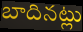
బాదినట్లు